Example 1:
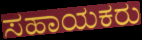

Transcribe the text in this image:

ಸಹಾಯಕರು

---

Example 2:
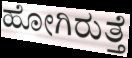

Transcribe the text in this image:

ಹೋಗಿರುತ್ತೆ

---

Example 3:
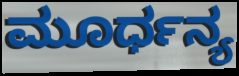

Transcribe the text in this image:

ಮೂರ್ಧನ್ಯ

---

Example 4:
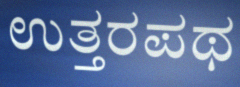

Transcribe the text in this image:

ಉತ್ತರಪಥ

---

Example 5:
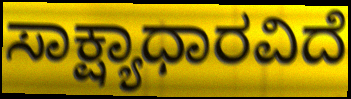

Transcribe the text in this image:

ಸಾಕ್ಷ್ಯಾಧಾರವಿದೆ